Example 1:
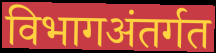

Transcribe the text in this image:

विभागअंतर्गत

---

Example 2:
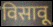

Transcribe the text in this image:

विसावू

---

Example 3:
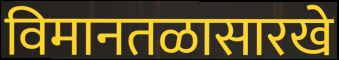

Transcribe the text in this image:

विमानतळासारखे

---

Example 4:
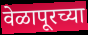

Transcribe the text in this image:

वेळापूरच्या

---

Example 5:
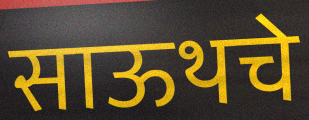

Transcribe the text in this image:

साऊथचे